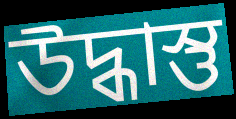
উদ্ধাস্তু